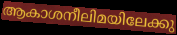
ആകാശനീലിമയിലേക്കു